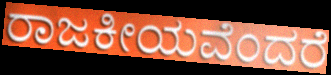
ರಾಜಕೀಯವೆಂದರೆ